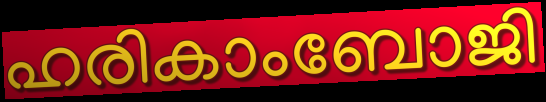
ഹരികാംബോജി